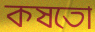
কষতো